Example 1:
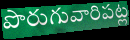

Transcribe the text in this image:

పొరుగువారిపట్ల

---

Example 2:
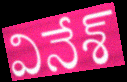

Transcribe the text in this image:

వినేశ్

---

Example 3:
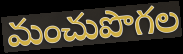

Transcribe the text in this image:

మంచుపొగల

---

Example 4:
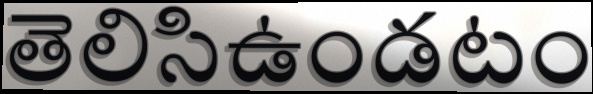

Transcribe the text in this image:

తెలిసిఉండటం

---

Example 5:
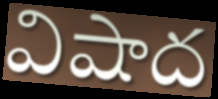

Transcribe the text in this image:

విషాద